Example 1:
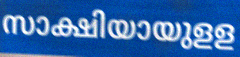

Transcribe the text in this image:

സാക്ഷിയായുളള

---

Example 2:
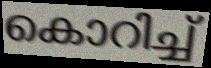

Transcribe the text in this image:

കൊറിച്ച്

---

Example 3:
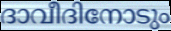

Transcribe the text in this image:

ദാവീദിനോടും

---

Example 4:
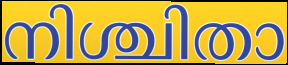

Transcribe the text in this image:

നിശ്ചിതാ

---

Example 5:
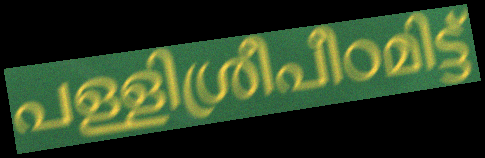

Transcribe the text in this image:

പള്ളിശ്രീപീഠമിട്ട്